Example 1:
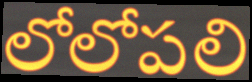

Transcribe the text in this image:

లోలోపలి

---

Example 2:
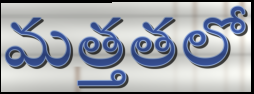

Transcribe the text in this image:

మత్తతలో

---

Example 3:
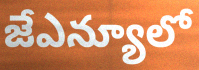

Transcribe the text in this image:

జేఎన్యూలో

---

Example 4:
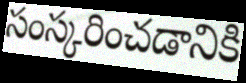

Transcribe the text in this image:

సంస్కరించడానికి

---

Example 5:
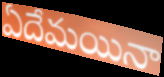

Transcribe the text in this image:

ఏదేమయినా